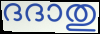
ദദാതു